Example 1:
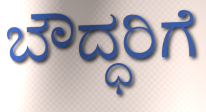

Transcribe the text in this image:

ಬೌದ್ಧರಿಗೆ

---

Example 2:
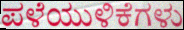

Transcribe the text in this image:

ಪಳೆಯುಳಿಕೆಗಳು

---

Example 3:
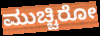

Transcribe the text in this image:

ಮುಚ್ಚಿರೋ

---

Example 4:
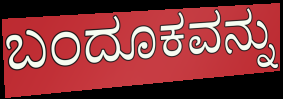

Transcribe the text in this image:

ಬಂದೂಕವನ್ನು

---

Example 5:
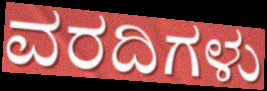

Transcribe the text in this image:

ವರದಿಗಳು